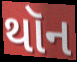
થૉન